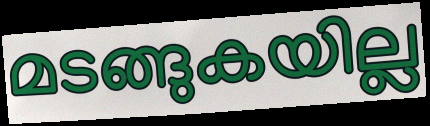
മടങ്ങുകയില്ല